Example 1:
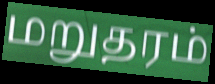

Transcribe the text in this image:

மறுதரம்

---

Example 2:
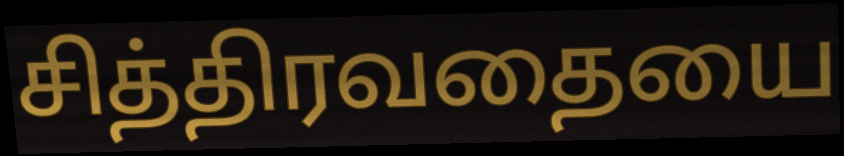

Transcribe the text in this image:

சித்திரவதையை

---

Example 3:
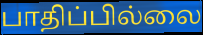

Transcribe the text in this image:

பாதிப்பில்லை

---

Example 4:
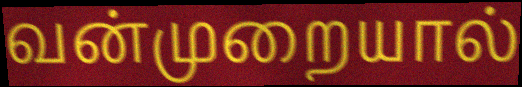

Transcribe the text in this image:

வன்முறையால்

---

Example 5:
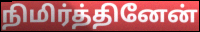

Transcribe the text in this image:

நிமிர்த்தினேன்